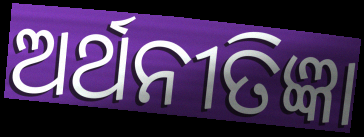
ଅର୍ଥନୀତିଜ୍ଞା